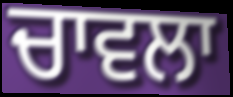
ਚਾਵਲਾ